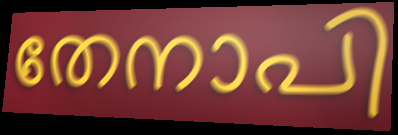
തേനാപി